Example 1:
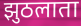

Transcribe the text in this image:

झुठलाता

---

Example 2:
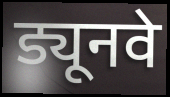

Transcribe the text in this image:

ड्यूनवे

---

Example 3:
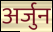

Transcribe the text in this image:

अर्जुन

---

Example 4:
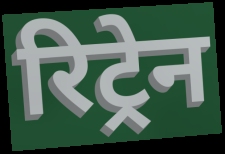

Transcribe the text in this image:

रिट्रेन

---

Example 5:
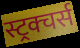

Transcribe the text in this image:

स्ट्रक्चर्स